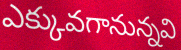
ఎక్కువగానున్నవి